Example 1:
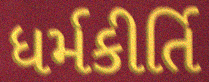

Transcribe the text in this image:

ધર્મકીર્તિ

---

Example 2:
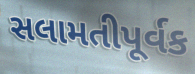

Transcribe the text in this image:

સલામતીપૂર્વક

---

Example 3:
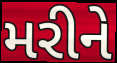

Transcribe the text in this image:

મરીને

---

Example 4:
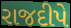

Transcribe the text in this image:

રાજદીપે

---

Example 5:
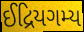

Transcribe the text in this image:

ઈદ્રિયગમ્ય